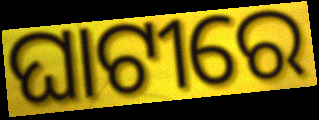
ଘାଟୀରେ